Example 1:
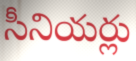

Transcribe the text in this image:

సీనియర్లు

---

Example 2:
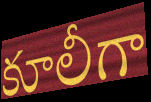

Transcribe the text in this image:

కూలీగా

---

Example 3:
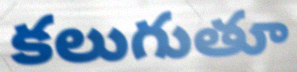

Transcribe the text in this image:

కలుగుతూ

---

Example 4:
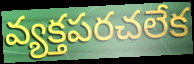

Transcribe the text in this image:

వ్యక్తపరచలేక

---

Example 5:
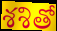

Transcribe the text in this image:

శశితో